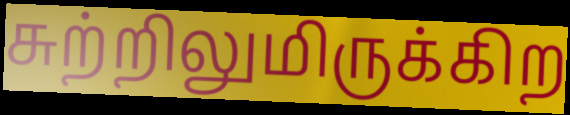
சுற்றிலுமிருக்கிற